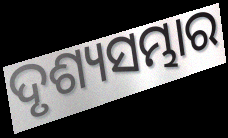
ଦୃଶ୍ୟସମ୍ଭାର